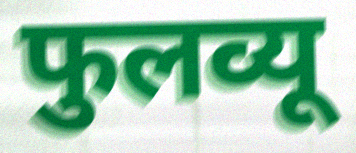
फुलव्यू